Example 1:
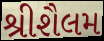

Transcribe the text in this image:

શ્રીશૈલમ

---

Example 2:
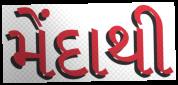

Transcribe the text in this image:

મેંદાથી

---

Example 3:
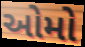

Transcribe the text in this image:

ઓમો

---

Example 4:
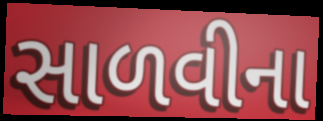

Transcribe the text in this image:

સાળવીના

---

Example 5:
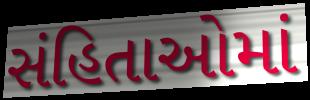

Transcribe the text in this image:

સંહિતાઓમાં